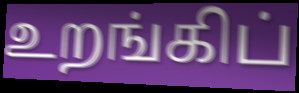
உறங்கிப்